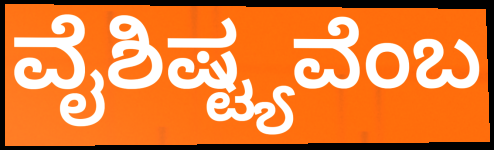
ವೈಶಿಷ್ಟ್ಯವೆಂಬ